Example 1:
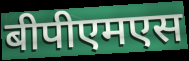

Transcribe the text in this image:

बीपीएमएस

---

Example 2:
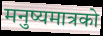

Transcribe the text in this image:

मनुष्यमात्रको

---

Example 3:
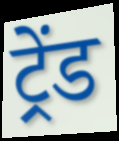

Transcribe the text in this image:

ट्रेंड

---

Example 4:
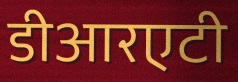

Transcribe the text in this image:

डीआरएटी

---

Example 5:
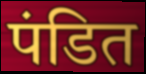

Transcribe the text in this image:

पंडित